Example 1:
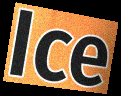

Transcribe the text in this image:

Ice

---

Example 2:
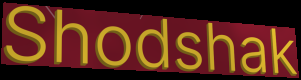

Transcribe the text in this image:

Shodshak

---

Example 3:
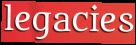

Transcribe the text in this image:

legacies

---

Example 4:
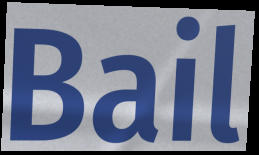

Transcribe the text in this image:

Bail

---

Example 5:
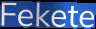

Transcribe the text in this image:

Fekete